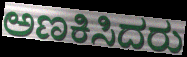
ಅಣಕಿಸಿದರು